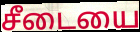
சீடையை